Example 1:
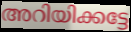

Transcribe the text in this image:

അറിയിക്കട്ടേ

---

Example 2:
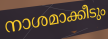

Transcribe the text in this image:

നാശമാക്കീടും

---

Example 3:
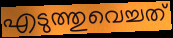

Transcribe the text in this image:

എടുത്തുവെച്ചത്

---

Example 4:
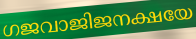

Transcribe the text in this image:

ഗജവാജിജനക്ഷയേ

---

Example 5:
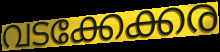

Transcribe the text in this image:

വടക്കേക്കര